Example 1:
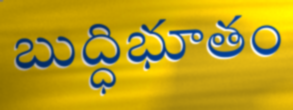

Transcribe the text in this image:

బుద్ధిభూతం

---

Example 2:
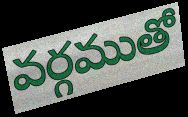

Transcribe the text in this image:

వర్గముతో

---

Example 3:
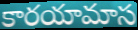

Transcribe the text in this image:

కారయామాస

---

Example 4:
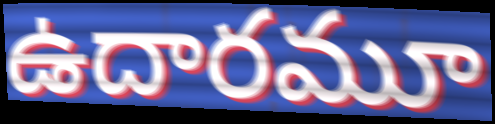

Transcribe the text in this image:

ఉదారమూ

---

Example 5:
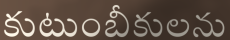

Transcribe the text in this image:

కుటుంబీకులను